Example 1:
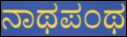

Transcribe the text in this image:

ನಾಥಪಂಥ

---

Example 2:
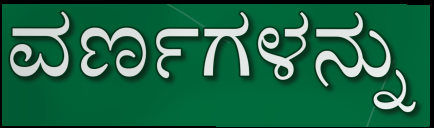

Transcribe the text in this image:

ವರ್ಣಗಳನ್ನು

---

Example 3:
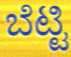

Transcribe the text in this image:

ಬೆಟ್ಟಿ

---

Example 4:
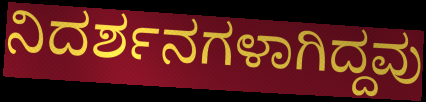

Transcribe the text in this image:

ನಿದರ್ಶನಗಳಾಗಿದ್ದವು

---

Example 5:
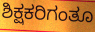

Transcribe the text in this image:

ಶಿಕ್ಷಕರಿಗಂತೂ